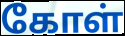
கோள்